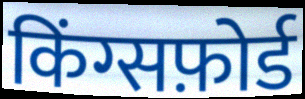
किंग्सफ़ोर्ड